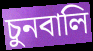
চুনবালি